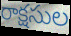
రాక్షసుల